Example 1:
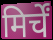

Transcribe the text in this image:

मिर्चें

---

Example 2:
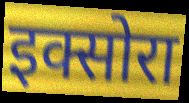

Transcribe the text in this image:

इक्सोरा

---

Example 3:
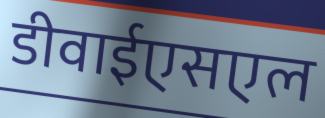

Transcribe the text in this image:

डीवाईएसएल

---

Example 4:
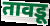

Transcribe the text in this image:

तावडू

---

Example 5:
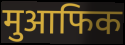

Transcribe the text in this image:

मुआफिक